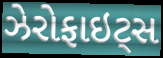
ઝેરોફાઇટ્સ